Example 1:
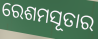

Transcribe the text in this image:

ରେଶମସୂତାର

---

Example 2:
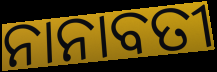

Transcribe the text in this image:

ନାନାବତୀ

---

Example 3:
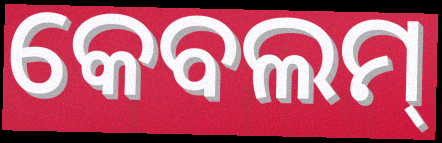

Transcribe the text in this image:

କେବଲମ୍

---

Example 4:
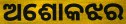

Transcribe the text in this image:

ଅଶୋକଝର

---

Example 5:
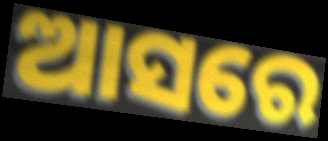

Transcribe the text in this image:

ଆସରେ